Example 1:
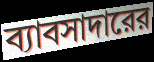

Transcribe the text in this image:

ব্যাবসাদারের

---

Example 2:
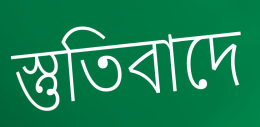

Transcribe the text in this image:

স্তুতিবাদে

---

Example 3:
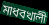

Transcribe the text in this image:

মাধবখালী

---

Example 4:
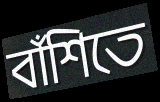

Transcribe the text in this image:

বাঁশিতে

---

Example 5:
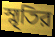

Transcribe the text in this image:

স্মৃতির